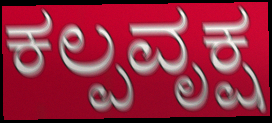
ಕಲ್ಪವೃಕ್ಷ